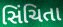
સિંચિતા